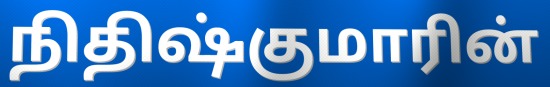
நிதிஷ்குமாரின்